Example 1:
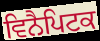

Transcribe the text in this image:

ਵਿਨੈਪਿਟਕ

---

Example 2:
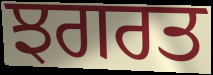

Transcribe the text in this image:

ਝਗਰਤ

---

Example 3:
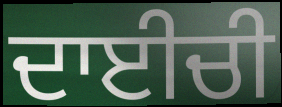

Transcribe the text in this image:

ਦਾਈਚੀ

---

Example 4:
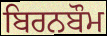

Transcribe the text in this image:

ਬਿਰਨਬੌਮ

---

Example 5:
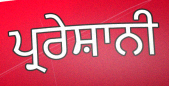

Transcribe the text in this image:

ਪ੍ਰਰੇਸ਼ਾਨੀ